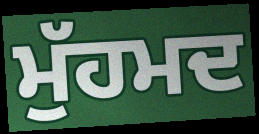
ਮੁੱਹਮਦ